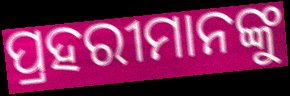
ପ୍ରହରୀମାନଙ୍କୁ